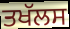
ਤਖੱਲਸ